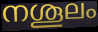
നശൂലം